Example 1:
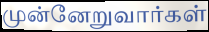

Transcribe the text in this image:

முன்னேறுவார்கள்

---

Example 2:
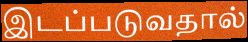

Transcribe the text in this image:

இடப்படுவதால்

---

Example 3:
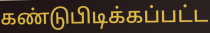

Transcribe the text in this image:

கண்டுபிடிக்கப்பட்ட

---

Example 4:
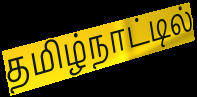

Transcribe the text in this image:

தமிழ்நாட்டில்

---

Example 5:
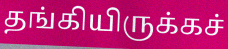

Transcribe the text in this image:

தங்கியிருக்கச்